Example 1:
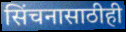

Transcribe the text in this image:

सिंचनासाठीही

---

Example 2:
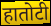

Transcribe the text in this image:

हातोटी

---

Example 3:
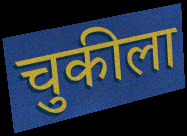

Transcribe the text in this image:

चुकीला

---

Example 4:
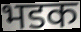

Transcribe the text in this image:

भडक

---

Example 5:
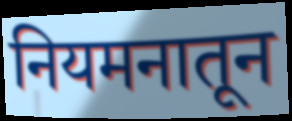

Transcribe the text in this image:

नियमनातून